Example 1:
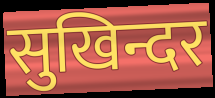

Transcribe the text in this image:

सुखिन्दर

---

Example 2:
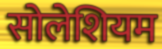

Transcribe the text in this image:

सोलेशियम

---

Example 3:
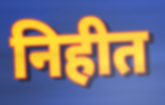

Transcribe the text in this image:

निहीत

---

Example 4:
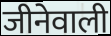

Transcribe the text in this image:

जीनेवाली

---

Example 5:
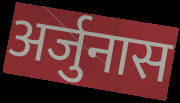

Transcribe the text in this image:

अर्जुनास